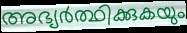
അഭ്യർത്ഥിക്കുകയും